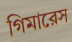
গিমারেস